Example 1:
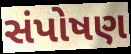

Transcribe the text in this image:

સંપોષણ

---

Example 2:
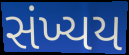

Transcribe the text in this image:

સંખ્યય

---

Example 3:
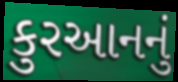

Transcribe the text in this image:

કુરઆનનું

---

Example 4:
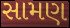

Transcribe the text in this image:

સામણ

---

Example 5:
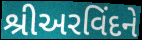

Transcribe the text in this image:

શ્રીઅરવિંદને